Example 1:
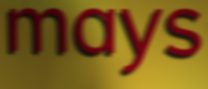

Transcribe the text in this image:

mays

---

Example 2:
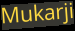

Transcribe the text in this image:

Mukarji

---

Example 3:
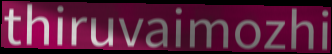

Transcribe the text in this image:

thiruvaimozhi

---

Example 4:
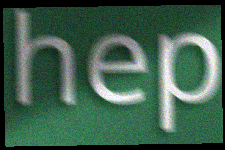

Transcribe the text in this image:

hep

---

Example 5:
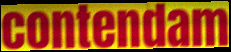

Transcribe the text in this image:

contendam